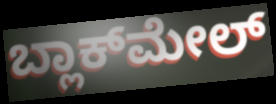
ಬ್ಲಾಕ್‌ಮೇಲ್